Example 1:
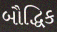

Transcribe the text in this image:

બૌદ્ધિક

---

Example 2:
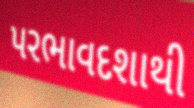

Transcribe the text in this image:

પરભાવદશાથી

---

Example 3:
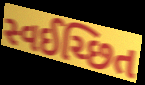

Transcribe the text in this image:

સ્વઈચ્છિત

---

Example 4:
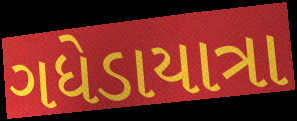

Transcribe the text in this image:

ગધેડાયાત્રા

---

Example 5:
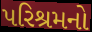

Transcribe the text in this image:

પરિશ્રમનો